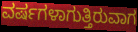
ವರ್ಷಗಳಾಗುತ್ತಿರುವಾಗ